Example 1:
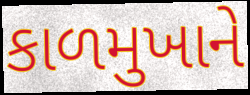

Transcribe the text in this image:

કાળમુખાને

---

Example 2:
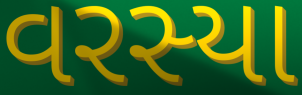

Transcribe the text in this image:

વરસ્યા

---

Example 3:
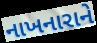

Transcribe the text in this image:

નાખનારાને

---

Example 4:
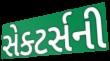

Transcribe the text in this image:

સેક્ટર્સની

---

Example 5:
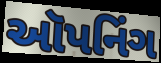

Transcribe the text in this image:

ઑપનિંગ